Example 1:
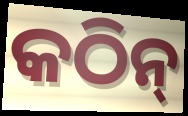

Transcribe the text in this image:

କଠିନ୍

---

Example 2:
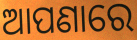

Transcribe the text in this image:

ଆପଣାରେ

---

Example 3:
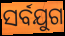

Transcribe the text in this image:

ସର୍ବଯୁଗ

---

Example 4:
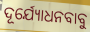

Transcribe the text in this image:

ଦୂର୍ଯ୍ୟୋଧନବାବୁ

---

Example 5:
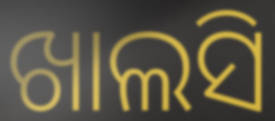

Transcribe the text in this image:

ଖାଲସି